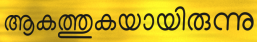
ആകത്തുകയായിരുന്നു